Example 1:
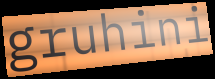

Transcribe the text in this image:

gruhini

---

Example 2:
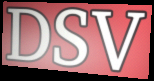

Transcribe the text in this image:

DSV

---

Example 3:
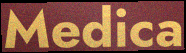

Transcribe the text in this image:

Medica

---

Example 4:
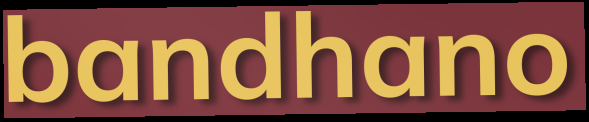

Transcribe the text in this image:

bandhano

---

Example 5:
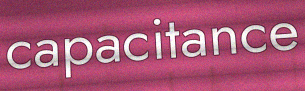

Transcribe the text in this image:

capacitance